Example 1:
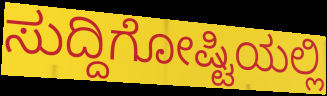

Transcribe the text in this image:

ಸುದ್ದಿಗೋಷ್ಟಿಯಲ್ಲಿ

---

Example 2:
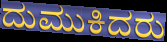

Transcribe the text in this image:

ದುಮುಕಿದರು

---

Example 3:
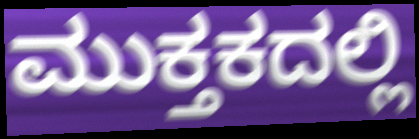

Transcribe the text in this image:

ಮುಕ್ತಕದಲ್ಲಿ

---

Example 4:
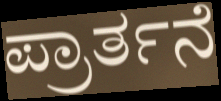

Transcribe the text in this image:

ಪ್ರಾರ್ತನೆ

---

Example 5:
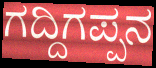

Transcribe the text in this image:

ಗದ್ದಿಗಪ್ಪನ